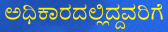
ಅಧಿಕಾರದಲ್ಲಿದ್ದವರಿಗೆ